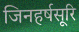
जिनहर्षसूरि